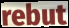
rebut